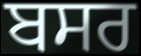
ਬਸਰ